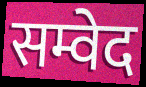
सम्वेद